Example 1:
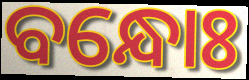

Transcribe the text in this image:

ବନ୍ଧୋଃ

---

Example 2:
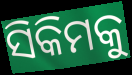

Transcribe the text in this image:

ସିକିମକୁ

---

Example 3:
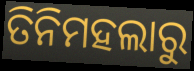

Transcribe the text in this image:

ତିନିମହଲାରୁ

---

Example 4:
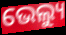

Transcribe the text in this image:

ଭେଲ୍ୟୁ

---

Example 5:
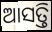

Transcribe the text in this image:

ଆସତ୍ତି